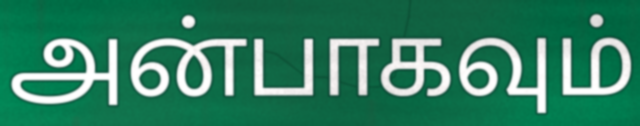
அன்பாகவும்